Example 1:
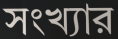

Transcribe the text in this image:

সংখ্যার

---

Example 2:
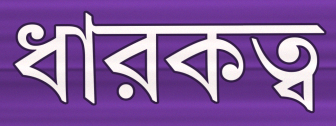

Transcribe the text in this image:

ধারকত্ব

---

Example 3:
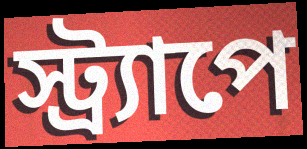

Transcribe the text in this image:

স্ট্র্যাপে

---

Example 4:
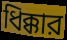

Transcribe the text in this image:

ধিক্কার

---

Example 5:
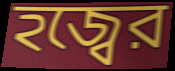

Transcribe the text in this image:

হজ্বের